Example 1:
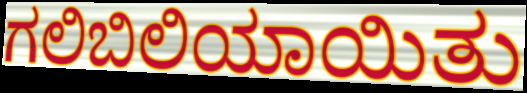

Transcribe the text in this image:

ಗಲಿಬಿಲಿಯಾಯಿತು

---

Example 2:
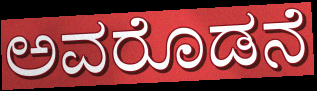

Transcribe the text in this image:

ಅವರೊಡನೆ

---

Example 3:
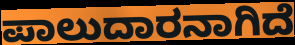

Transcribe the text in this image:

ಪಾಲುದಾರನಾಗಿದೆ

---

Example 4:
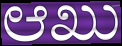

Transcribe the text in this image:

ಆಖು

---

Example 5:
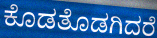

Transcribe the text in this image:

ಕೊಡತೊಡಗಿದರೆ